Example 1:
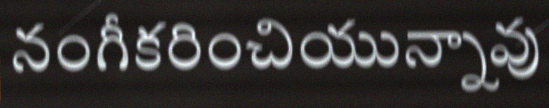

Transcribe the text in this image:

నంగీకరించియున్నావు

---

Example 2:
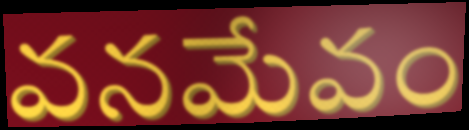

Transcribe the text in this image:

వనమేవం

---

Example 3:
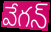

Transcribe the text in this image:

వేగన్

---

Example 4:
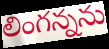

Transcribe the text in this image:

లింగన్నను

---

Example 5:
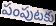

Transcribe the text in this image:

పంపుటకు